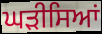
ਘੜੀਸਿਆਂ